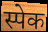
स्पेक